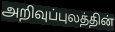
அறிவுப்புலத்தின்